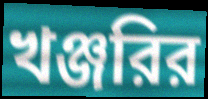
খঞ্জরির